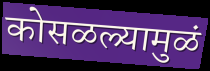
कोसळल्यामुळं